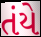
તંયે